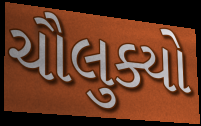
ચૌલુક્યો